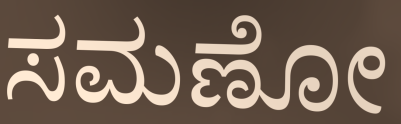
ಸಮಣೋ